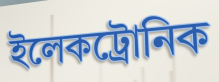
ইলেকট্রোনিক